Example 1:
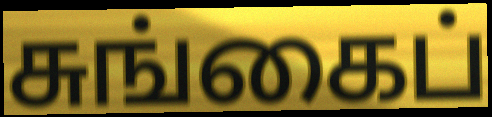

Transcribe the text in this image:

சுங்கைப்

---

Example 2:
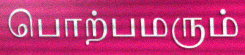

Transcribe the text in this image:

பொற்பமரும்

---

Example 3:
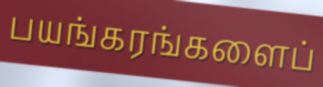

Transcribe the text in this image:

பயங்கரங்களைப்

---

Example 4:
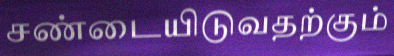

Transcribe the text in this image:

சண்டையிடுவதற்கும்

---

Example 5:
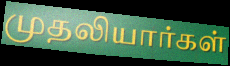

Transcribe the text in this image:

முதலியார்கள்